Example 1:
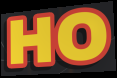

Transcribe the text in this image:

HO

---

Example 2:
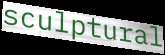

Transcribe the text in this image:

sculptural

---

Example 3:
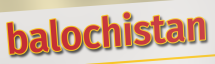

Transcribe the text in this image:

balochistan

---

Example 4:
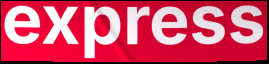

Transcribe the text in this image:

express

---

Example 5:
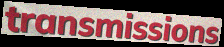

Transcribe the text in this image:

transmissions